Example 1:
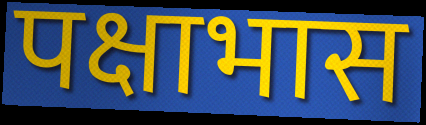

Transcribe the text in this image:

पक्षाभास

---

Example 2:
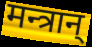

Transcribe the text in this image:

मन्त्रान्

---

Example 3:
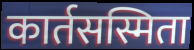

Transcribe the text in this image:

कार्तसस्मिता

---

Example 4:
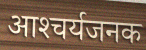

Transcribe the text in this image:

आश्‍चर्यजनक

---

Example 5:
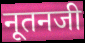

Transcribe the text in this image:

नूतनजी